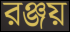
রঞ্জয়